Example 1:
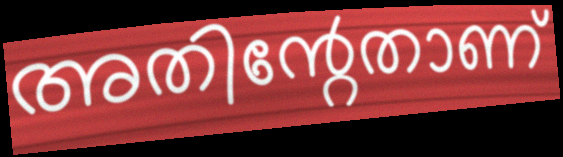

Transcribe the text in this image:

അതിന്റേതാണ്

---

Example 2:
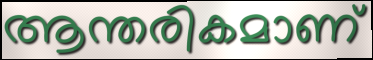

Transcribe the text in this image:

ആന്തരികമാണ്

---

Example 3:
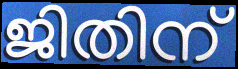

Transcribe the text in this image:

ജിതിന്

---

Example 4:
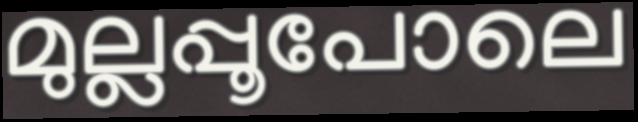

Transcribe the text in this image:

മുല്ലപ്പൂപോലെ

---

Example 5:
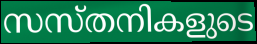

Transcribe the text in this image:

സസ്തനികളുടെ